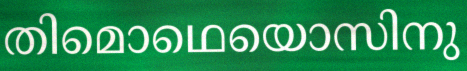
തിമൊഥെയൊസിനു